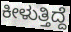
ಕೀಳುತ್ತಿದ್ದೆ